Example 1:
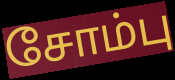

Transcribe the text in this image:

சோம்பு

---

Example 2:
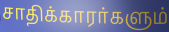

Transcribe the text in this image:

சாதிக்காரர்களும்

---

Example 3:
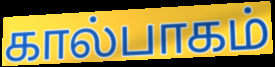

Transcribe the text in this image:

கால்பாகம்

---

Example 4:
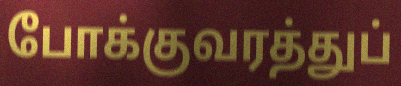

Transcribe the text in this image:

போக்குவரத்துப்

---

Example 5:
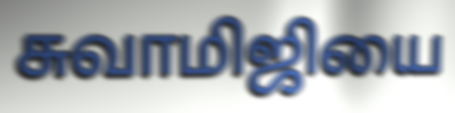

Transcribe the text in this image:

சுவாமிஜியை